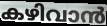
കഴിവാൻ